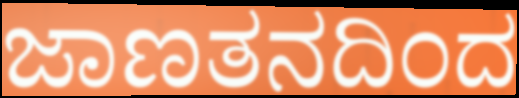
ಜಾಣತನದಿಂದ